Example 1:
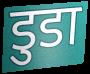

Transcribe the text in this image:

डुडा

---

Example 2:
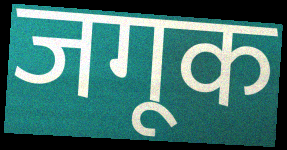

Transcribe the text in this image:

जगूक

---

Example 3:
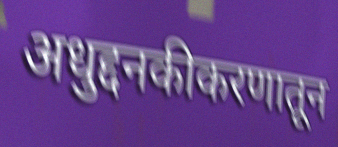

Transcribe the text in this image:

अधुद्दनकीकरणातून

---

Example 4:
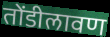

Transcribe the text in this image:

तोंडीलावण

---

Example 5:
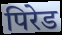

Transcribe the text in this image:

पिरेड